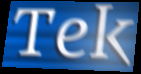
Tek